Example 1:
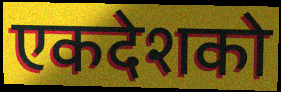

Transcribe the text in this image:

एकदेशको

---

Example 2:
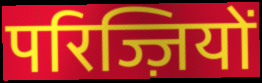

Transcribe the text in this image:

परिज्ज़ियों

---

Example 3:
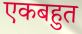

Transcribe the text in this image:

एकबहुत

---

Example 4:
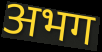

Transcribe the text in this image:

अभग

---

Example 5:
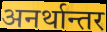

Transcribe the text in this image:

अनर्थान्तर